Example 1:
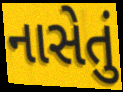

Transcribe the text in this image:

નાસેતું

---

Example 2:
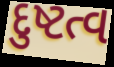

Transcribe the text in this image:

દુષ્ટત્વ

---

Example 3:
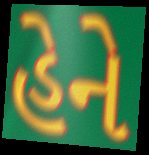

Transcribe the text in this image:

હેને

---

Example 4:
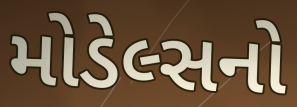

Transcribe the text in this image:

મોડેલ્સનો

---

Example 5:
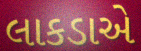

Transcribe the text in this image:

લાકડાએ